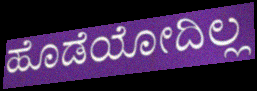
ಹೊಡೆಯೋದಿಲ್ಲ